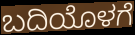
ಬದಿಯೊಳಗೆ